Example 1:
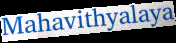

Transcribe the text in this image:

Mahavithyalaya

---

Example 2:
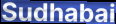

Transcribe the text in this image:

Sudhabai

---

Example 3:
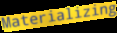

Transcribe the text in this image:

Materializing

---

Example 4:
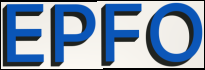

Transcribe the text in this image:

EPFO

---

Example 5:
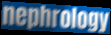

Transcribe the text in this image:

nephrology